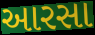
આરસા